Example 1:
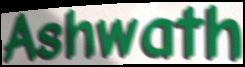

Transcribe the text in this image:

Ashwath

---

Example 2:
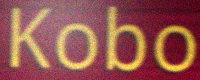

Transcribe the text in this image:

Kobo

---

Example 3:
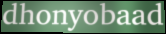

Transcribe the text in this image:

dhonyobaad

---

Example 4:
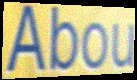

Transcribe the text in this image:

Abou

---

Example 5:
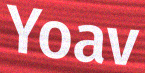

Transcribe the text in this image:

Yoav